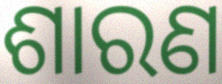
ଶାରଣ